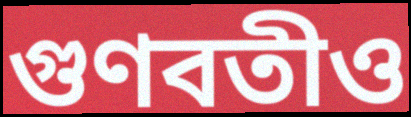
গুণবতীও